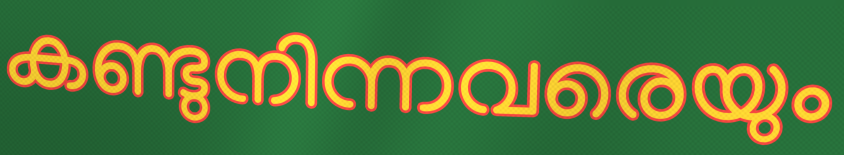
കണ്ടുനിന്നവരെയും